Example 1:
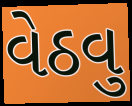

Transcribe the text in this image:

વેઠવુ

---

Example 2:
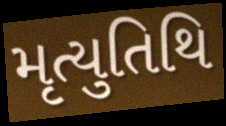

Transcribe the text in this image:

મૃત્યુતિથિ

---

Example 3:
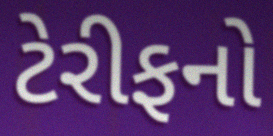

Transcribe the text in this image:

ટેરીફનો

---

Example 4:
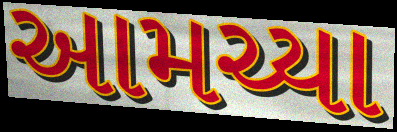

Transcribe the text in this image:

આમચ્યા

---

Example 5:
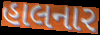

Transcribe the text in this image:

હાલનાર